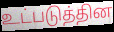
உட்படுத்தின